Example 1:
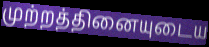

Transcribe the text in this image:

முற்றத்தினையுடைய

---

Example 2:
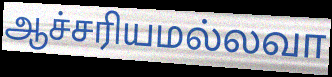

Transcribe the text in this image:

ஆச்சரியமல்லவா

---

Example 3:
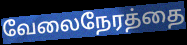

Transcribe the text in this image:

வேலைநேரத்தை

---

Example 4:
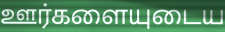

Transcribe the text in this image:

ஊர்களையுடைய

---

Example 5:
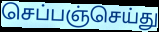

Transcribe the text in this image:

செப்பஞ்செய்து